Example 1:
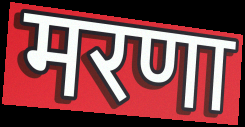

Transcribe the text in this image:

मरणा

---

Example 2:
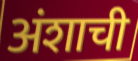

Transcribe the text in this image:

अंशाची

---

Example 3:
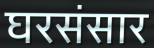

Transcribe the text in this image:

घरसंसार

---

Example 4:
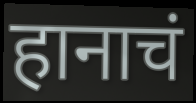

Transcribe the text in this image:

हानाचं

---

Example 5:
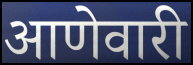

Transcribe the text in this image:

आणेवारी